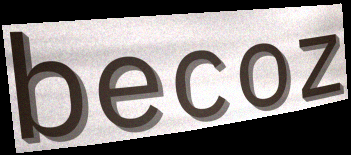
becoz